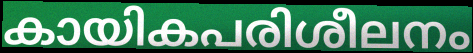
കായികപരിശീലനം